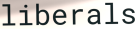
liberals